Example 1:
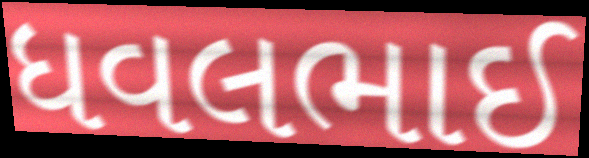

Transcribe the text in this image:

ધવલભાઈ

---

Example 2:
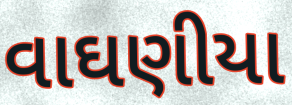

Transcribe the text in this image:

વાઘણીયા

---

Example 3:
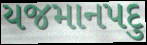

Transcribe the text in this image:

યજમાનપદુ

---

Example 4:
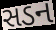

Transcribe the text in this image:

સડન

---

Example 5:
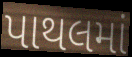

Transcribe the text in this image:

પાથલમાં